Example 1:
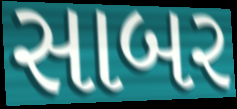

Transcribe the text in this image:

સાબર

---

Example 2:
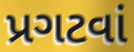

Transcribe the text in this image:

પ્રગટવાં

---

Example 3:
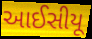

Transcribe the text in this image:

આઈસીયૂ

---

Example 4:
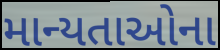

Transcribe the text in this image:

માન્યતાઓના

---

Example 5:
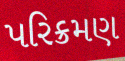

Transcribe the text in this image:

પરિક્રમણ